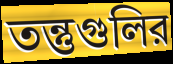
তন্তুগুলির